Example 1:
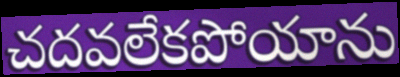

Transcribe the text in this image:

చదవలేకపోయాను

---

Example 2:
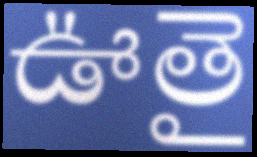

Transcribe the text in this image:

ఊతై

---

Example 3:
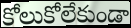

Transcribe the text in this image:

కోలుకోలేకుండా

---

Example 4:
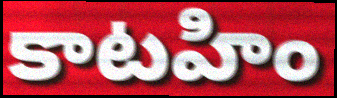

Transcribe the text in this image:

కాటహిం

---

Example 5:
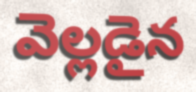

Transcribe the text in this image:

వెల్లడైన